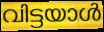
വിട്ടയാൾ